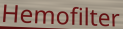
Hemofilter